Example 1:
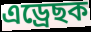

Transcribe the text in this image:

এড্ৰেছক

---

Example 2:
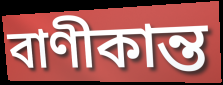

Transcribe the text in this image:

বাণীকান্ত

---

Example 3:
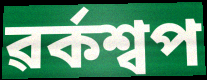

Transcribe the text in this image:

ৱৰ্কশ্বপ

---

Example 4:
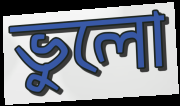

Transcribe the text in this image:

ভুলো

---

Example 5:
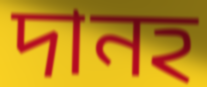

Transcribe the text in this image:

দানহ